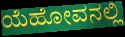
ಯೆಹೋವನಲ್ಲಿ